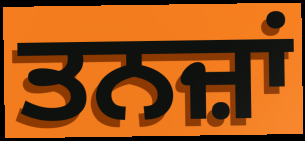
ਤਨਜ਼ਾਂ